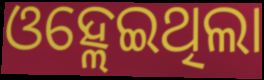
ଓହ୍ଲେଇଥିଲା